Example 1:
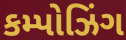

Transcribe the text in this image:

કમ્પોઝિંગ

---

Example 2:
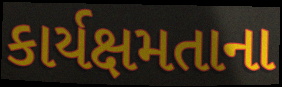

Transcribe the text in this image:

કાર્યક્ષમતાના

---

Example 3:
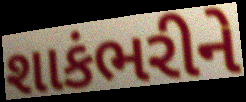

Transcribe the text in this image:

શાકંભરીને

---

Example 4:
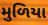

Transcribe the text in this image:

મુળિયા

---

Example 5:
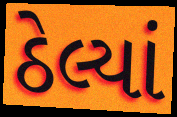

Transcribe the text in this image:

ઠેલ્યાં